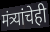
मंत्र्यांचेही